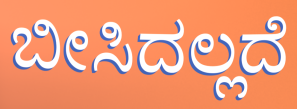
ಬೀಸಿದಲ್ಲದೆ